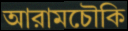
আরামচৌকি